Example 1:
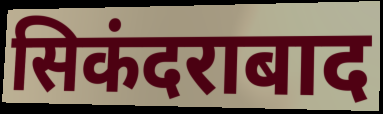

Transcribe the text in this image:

सिकंदराबाद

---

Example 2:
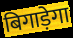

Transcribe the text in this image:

बिगाड़ेगा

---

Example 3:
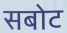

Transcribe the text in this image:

सबोट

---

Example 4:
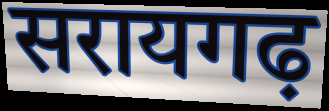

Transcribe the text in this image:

सरायगढ़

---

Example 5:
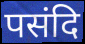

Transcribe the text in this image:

पसंदि